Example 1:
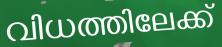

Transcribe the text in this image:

വിധത്തിലേക്ക്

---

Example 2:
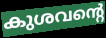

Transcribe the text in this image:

കുശവന്റെ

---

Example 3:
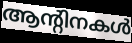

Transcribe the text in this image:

ആന്റിനകൾ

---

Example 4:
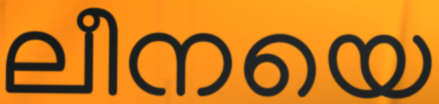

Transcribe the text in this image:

ലീനയെ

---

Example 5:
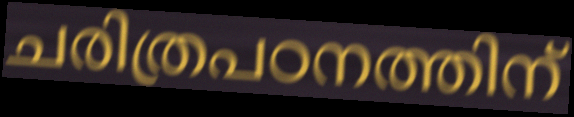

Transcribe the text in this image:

ചരിത്രപഠനത്തിന്